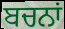
ਬਚਨਾਂ